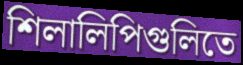
শিলালিপিগুলিতে